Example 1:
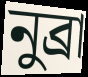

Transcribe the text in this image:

নুব্রা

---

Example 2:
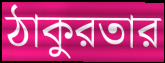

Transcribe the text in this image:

ঠাকুরতার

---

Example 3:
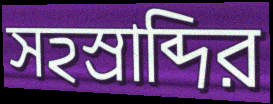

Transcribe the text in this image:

সহস্রাব্দির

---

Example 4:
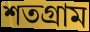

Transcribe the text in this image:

শতগ্রাম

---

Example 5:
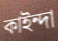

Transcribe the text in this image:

কাইন্দা